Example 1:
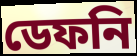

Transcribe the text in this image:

ডেফনি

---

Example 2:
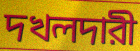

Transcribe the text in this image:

দখলদারী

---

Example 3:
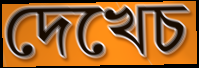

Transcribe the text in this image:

দেখেচ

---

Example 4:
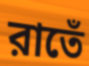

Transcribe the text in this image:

রাতেঁ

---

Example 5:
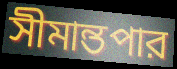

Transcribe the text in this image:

সীমান্তপার